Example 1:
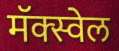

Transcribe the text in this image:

मॅक्स्वेल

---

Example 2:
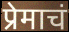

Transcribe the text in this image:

प्रेमाचं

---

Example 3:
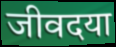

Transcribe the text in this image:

जीवदया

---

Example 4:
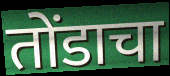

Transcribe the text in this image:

तोंडाचा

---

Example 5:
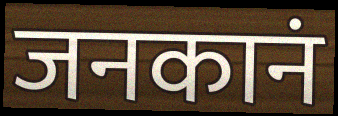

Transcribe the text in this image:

जनकानं